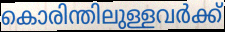
കൊരിന്തിലുള്ളവർക്ക്